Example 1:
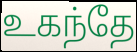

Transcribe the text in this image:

உகந்தே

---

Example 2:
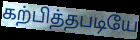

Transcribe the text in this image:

கற்பித்தபடியே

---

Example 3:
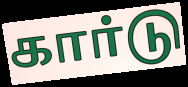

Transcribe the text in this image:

கார்டு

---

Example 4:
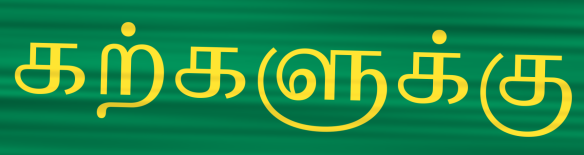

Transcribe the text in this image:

கற்களுக்கு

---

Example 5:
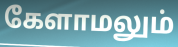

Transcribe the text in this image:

கேளாமலும்